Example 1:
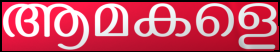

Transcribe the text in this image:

ആമകളെ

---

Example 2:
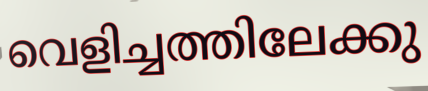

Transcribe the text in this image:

വെളിച്ചത്തിലേക്കു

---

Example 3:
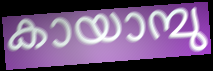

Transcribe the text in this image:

കായാമ്പു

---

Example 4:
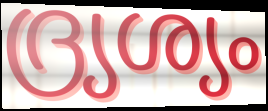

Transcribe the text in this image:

ദ്ര്യശ്യം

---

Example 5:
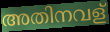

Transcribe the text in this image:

അതിനവള്